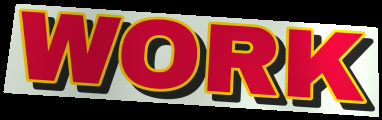
WORK